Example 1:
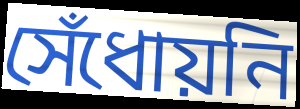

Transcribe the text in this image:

সেঁধোয়নি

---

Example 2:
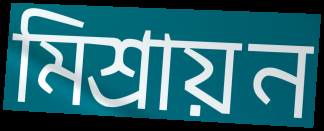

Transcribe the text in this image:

মিশ্রায়ন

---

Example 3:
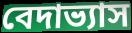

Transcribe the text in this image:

বেদাভ্যাস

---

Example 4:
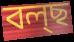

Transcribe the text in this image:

বল্‌ছ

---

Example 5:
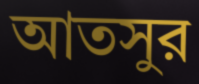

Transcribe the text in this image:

আতসুর